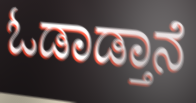
ಓಡಾಡ್ತಾನೆ